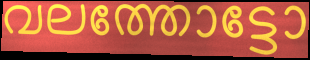
വലത്തോട്ടോ